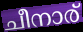
ചീനാര്